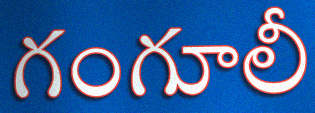
గంగూలీ